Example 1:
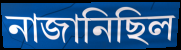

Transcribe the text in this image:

নাজানিছিল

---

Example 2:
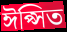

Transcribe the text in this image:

ঈপ্সিত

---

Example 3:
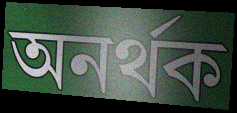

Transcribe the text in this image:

অনৰ্থক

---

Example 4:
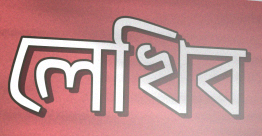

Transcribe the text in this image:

লেখিব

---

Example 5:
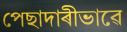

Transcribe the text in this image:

পেছাদাৰীভাৱে